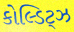
કોલ્ડિટ્ઝ